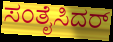
ಸಂತೈಸಿದರ್